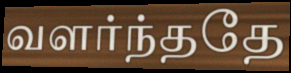
வளர்ந்ததே